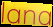
lana